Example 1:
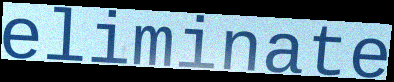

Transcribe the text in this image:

eliminate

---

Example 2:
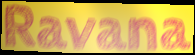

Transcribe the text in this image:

Ravana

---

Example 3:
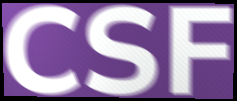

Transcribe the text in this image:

CSF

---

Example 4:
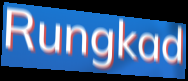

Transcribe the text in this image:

Rungkad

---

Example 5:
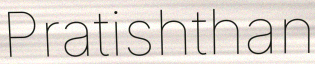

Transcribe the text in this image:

Pratishthan